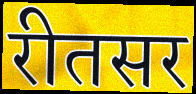
रीतसर